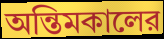
অন্তিমকালের